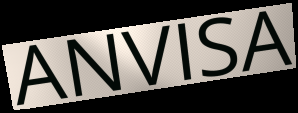
ANVISA